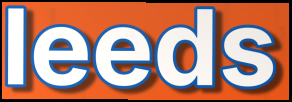
leeds